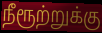
நீரூற்றுக்கு